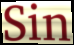
Sin